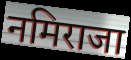
नमिराजा